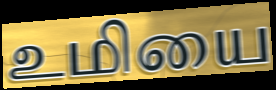
உமியை